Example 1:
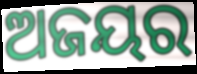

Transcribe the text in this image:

ଅଜୟର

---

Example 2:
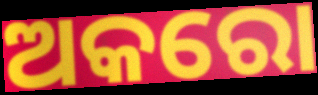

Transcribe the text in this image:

ଅକରୋ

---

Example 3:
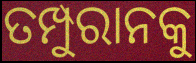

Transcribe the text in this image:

ତମ୍ପୁରାନକୁ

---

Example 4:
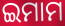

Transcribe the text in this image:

ଇମାମ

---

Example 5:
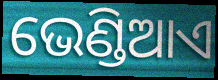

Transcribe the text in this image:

ଭେଣ୍ଡିଆଏ